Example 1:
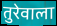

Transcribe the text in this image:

तुरेवाला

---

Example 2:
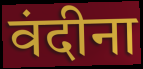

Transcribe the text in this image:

वंदीना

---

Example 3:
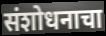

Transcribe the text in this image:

संशोधनाचा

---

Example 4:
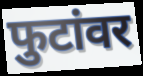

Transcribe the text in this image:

फुटांवर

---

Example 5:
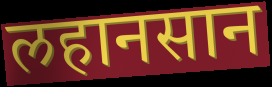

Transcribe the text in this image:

लहानसान